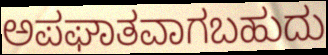
ಅಪಘಾತವಾಗಬಹುದು